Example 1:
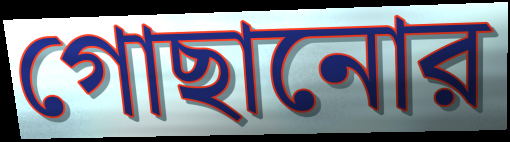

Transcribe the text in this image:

গোছানোর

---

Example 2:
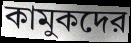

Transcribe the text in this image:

কামুকদের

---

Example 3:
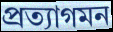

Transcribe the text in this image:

প্রত্যাগমন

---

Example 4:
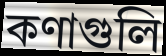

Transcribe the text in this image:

কণাগুলি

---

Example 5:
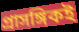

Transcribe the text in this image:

প্রাসঙ্গিকই